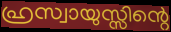
ഹ്രസ്വായുസ്സിന്റെ